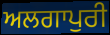
ਅਲਗਾਪੁਰੀ